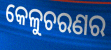
କେଳୁଚରଣର